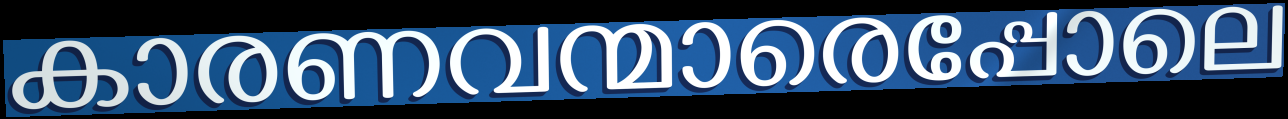
കാരണവന്മാരെപ്പോലെ